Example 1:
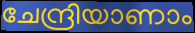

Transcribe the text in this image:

ചേന്ദ്രിയാണാം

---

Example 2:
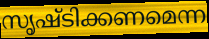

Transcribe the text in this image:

സൃഷ്ടിക്കണമെന്ന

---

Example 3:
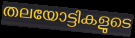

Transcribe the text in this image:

തലയോട്ടികളുടെ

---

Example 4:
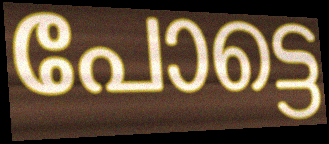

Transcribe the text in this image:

പോട്ടെ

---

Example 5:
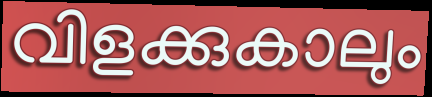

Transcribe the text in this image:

വിളക്കുകാലും